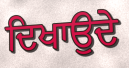
ਦਿਖਾਉਦੇ